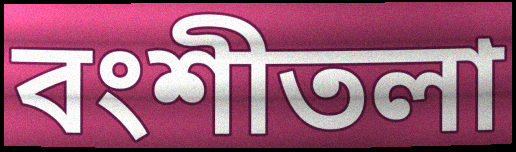
বংশীতলা